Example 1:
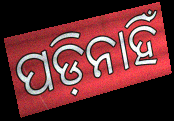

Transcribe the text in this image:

ପଡ଼ିନାହିଁ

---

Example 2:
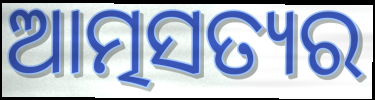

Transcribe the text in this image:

ଆତ୍ମସତ୍ୟର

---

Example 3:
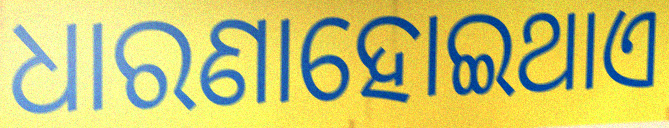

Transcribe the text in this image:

ଧାରଣାହୋଇଥାଏ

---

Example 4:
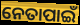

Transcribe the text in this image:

ନେତାପାଇଁ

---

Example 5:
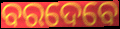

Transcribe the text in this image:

ବରଦେବେ